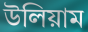
উলিয়াম